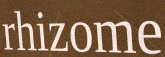
rhizome